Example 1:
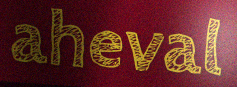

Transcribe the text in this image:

aheval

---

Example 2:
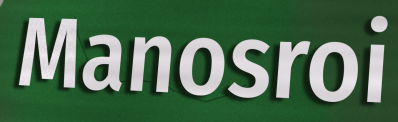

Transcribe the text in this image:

Manosroi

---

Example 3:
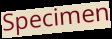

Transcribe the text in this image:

Specimen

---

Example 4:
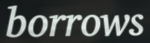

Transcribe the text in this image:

borrows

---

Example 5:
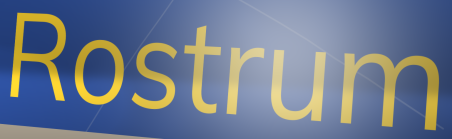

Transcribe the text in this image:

Rostrum